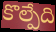
కొల్పేది